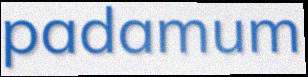
padamum